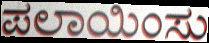
ಪಲಾಯಿಂಸು